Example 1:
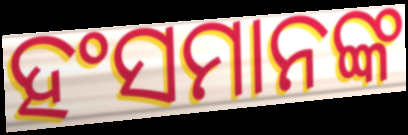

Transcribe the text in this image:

ହଂସମାନଙ୍କ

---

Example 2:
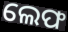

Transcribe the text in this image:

ଲେଫ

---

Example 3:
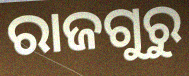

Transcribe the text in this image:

ରାଜଗୁରୁ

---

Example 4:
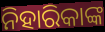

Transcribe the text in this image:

ନିହାରିକାଙ୍କ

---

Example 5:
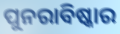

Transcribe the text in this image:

ପୁନରାବିଷ୍କାର